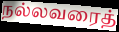
நல்லவரைத்